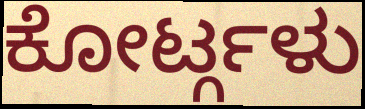
ಕೋರ್ಟ್ಗಳು